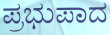
ಪ್ರಭುಪಾದ